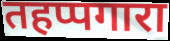
तहप्पगारा